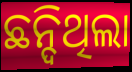
ଛନ୍ଦିଥିଲା